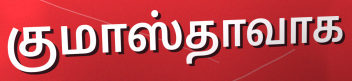
குமாஸ்தாவாக